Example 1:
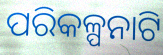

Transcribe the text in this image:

ପରିକଳ୍ପନାଟି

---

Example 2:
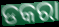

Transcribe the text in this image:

ଡକରା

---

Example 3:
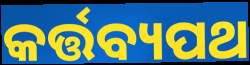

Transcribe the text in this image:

କର୍ତ୍ତବ୍ୟପଥ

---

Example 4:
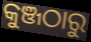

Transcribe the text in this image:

କୁଞ୍ଜଠାରୁ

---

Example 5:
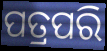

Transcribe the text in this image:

ପତ୍ରପରି